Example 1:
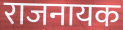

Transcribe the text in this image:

राजनायक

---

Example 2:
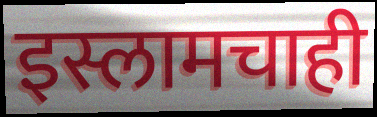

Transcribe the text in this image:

इस्लामचाही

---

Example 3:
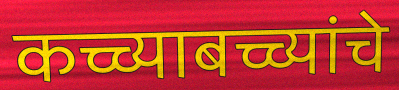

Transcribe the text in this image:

कच्च्याबच्च्यांचे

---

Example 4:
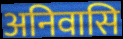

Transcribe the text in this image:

अनिवासि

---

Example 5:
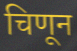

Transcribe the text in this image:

चिणून